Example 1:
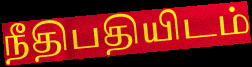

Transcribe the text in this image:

நீதிபதியிடம்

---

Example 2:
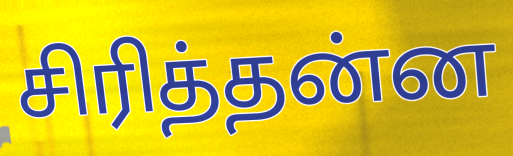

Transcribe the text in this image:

சிரித்தன்ன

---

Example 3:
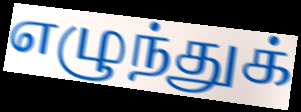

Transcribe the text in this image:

எழுந்துக்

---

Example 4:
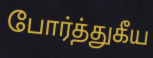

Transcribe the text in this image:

போர்த்துகீய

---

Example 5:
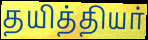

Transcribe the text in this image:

தயித்தியர்